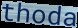
thoda